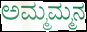
ಅಮ್ಮಮ್ಮನ